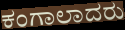
ಕಂಗಾಲಾದರು